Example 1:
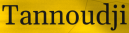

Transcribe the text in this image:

Tannoudji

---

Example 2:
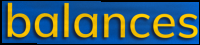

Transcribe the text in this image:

balances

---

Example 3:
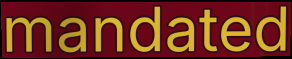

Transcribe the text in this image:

mandated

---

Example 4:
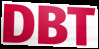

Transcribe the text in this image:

DBT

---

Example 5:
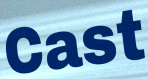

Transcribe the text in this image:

Cast